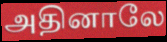
அதினாலே